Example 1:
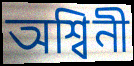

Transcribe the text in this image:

অশ্বিনী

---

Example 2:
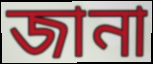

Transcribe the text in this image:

জানা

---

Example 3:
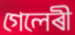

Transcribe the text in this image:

গেলেৰী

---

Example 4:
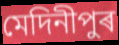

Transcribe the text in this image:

মেদিনীপুৰ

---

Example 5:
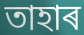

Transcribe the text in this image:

তাহাৰ